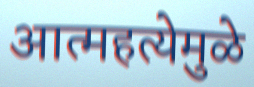
आत्महत्येमुळे